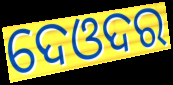
ଦେଓଦର